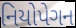
નિયોપેગન